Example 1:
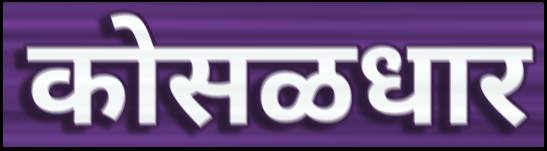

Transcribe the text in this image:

कोसळधार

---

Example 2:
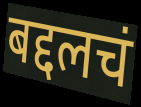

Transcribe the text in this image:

बद्दलचं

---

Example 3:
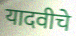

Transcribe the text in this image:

यादवीचे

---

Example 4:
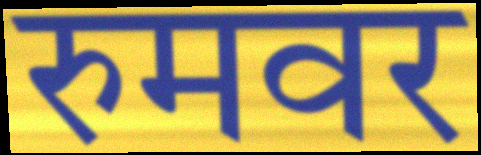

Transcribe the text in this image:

रुमवर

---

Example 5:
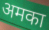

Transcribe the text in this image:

अमका